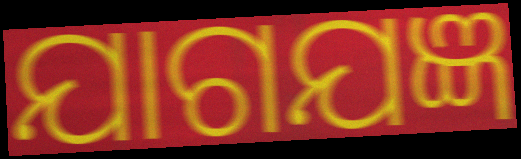
ଯାଗଯଜ୍ଞ